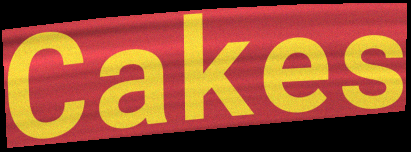
Cakes